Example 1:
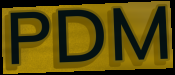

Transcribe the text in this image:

PDM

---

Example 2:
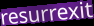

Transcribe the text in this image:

resurrexit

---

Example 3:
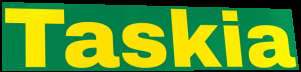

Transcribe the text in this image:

Taskia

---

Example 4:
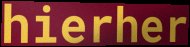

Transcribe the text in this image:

hierher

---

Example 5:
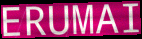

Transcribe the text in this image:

ERUMAI